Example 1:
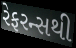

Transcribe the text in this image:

રેફરન્સથી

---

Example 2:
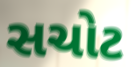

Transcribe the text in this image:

સચોટ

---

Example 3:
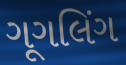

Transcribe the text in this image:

ગૂગલિંગ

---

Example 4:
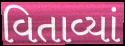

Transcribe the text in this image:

વિતાવ્યાં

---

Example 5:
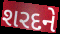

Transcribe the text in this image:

શરદને